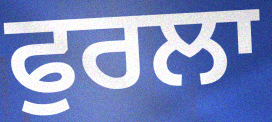
ਫੁਰਲਾ